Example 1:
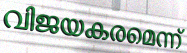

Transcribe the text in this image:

വിജയകരമെന്ന്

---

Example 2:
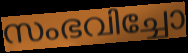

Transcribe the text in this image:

സംഭവിച്ചോ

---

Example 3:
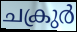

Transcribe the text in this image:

ചക്രുർ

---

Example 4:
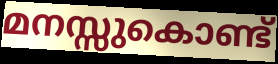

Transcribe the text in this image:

മനസ്സുകൊണ്ട്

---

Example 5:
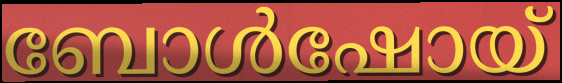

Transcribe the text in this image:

ബോൾഷോയ്